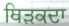
ਥਿੜਕਦਾ